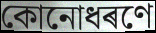
কোনোধৰণে